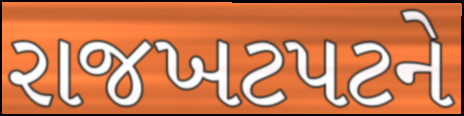
રાજખટપટને